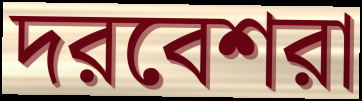
দরবেশরা